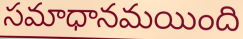
సమాధానమయింది